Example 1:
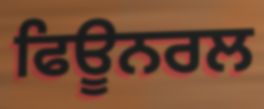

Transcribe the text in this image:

ਫਿਊਨਰਲ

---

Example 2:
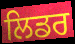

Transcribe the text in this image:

ਲਿਡਰ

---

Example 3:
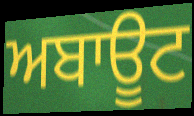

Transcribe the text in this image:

ਅਬਾਊਟ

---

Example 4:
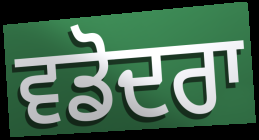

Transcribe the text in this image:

ਵਡੋਦਰਾ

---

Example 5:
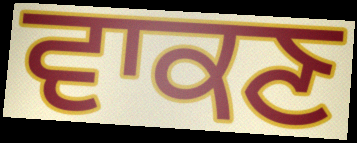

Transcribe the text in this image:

ਵਾਕਣ